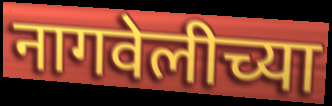
नागवेलीच्या